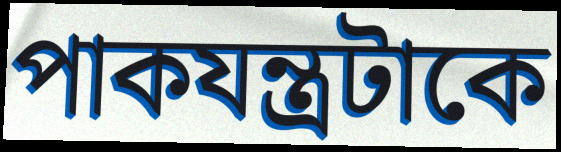
পাকযন্ত্রটাকে